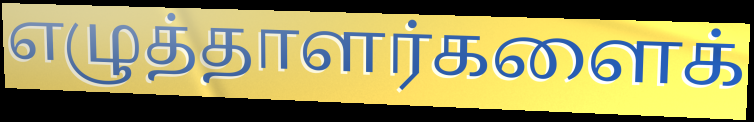
எழுத்தாளர்களைக்